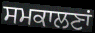
ਸਮਕਾਲਣਾਂ